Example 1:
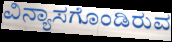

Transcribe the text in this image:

ವಿನ್ಯಾಸಗೊಂಡಿರುವ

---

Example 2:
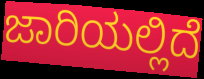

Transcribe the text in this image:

ಜಾರಿಯಲ್ಲಿದೆ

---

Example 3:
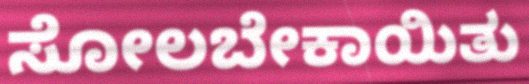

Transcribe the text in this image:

ಸೋಲಬೇಕಾಯಿತು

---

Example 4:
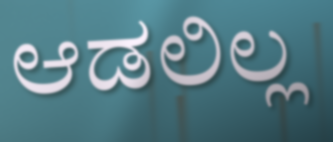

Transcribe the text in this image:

ಆಡಲಿಲ್ಲ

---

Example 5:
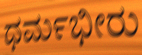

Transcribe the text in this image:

ಧರ್ಮಭೀರು